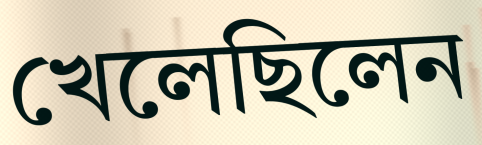
খেলেছিলেন